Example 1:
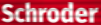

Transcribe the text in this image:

Schroder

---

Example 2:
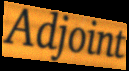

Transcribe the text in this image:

Adjoint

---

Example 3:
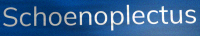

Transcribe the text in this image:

Schoenoplectus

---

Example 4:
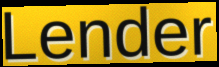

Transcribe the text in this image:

Lender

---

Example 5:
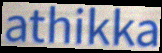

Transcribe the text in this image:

athikka